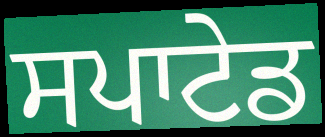
ਸਪਾਟੇਡ